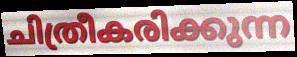
ചിത്രീകരിക്കുന്ന